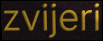
zvijeri